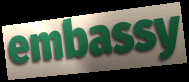
embassy